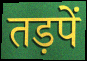
तड़पें